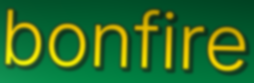
bonfire